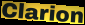
Clarion